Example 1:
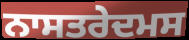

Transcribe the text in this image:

ਨਾਸਤਰੇਦਮਸ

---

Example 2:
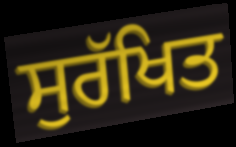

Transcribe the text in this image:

ਸੁਰੱਖਿਤ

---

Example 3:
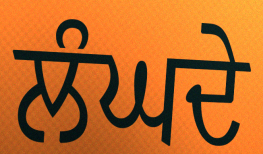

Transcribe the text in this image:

ਲੰਘਦੇ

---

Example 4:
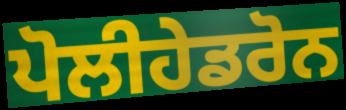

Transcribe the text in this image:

ਪੋਲੀਹੇਡਰੋਨ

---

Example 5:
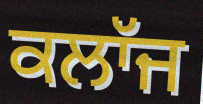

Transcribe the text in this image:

ਕਲਾੱਜ